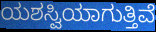
ಯಶಸ್ವಿಯಾಗುತ್ತಿವೆ